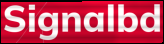
Signalbd